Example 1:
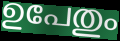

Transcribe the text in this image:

ഉപേതും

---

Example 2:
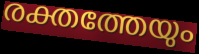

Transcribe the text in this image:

രക്തത്തേയും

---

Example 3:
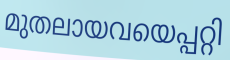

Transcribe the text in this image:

മുതലായവയെപ്പറ്റി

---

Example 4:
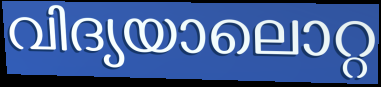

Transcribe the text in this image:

വിദ്യയാലൊറ്റ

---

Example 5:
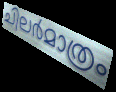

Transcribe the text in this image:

ചിലർമാത്രം